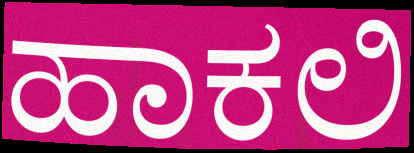
ಹಾಕಲಿ